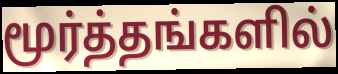
மூர்த்தங்களில்